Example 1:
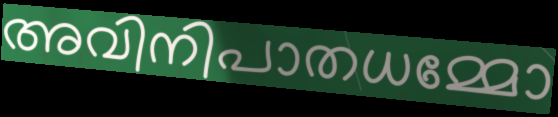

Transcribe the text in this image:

അവിനിപാതധമ്മോ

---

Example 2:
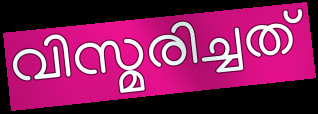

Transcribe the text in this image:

വിസ്മരിച്ചത്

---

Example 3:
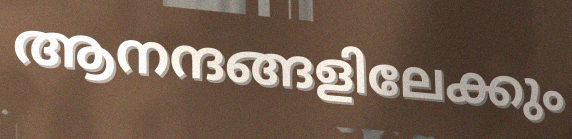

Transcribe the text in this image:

ആനന്ദങ്ങളിലേക്കും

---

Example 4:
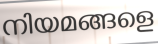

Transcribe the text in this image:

നിയമങ്ങളെ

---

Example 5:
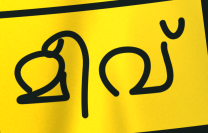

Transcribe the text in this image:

മീവ്